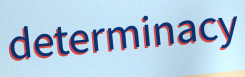
determinacy